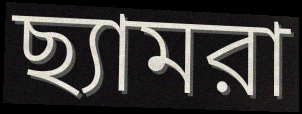
ছ্যামরা